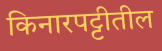
किनारपट्टीतील